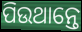
ପିଉଥାନ୍ତେ